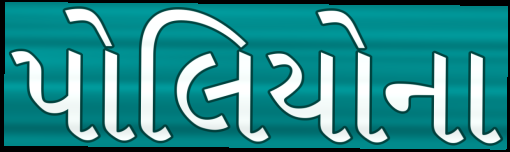
પોલિયોના